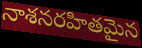
నాశనరహితమైన